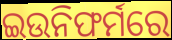
ଇଉନିଫର୍ମରେ